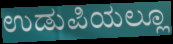
ಉಡುಪಿಯಲ್ಲೂ